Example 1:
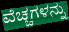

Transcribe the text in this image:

ವೆಚ್ಚಗಳನ್ನು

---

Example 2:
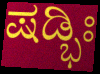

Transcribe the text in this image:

ಷಡ್ಭಿಃ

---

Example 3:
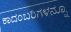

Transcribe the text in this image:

ಕಾದಂಬರಿಗಳನ್ನೂ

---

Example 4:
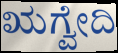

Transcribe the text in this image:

ಋಗ್ವೇದಿ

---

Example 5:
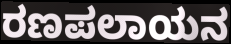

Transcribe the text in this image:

ರಣಪಲಾಯನ